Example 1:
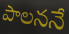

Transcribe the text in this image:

పాలననే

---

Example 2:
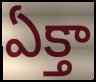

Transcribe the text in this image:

ఏక్తా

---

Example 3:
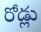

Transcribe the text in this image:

రోడ్లు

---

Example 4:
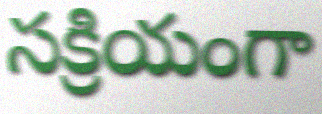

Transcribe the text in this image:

సక్రియంగా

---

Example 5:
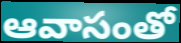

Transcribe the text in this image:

ఆవాసంతో